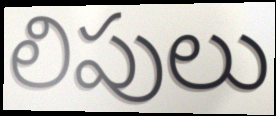
లిపులు